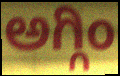
ಅಗ್ಗಿಂ